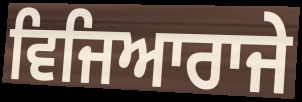
ਵਿਜਿਆਰਾਜੇ